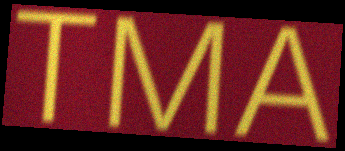
TMA